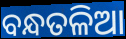
ବନ୍ଧତଳିଆ